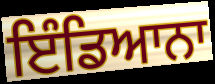
ਇੰਡਿਆਨਾ